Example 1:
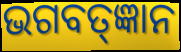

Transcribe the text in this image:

ଭଗବତ୍‌ଜ୍ଞାନ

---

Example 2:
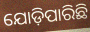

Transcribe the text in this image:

ଯୋଡ଼ିପାରିଛି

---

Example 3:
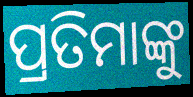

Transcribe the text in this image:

ପ୍ରତିମାଙ୍କୁ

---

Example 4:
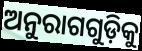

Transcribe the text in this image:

ଅନୁରାଗଗୁଡ଼ିକୁ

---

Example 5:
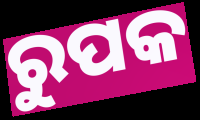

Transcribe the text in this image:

ରୁପକ